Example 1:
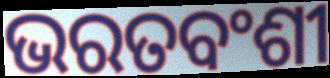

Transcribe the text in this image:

ଭରତବଂଶୀ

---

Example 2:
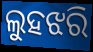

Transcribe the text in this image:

ଲୁହଝରି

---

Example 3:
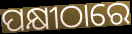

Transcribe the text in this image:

ପକ୍ଷୀଠାରେ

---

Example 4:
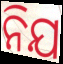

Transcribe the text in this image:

ନିଯ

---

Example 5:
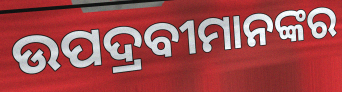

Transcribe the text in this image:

ଉପଦ୍ରବୀମାନଙ୍କର